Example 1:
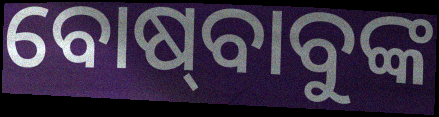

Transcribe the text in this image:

ବୋଷ୍‍ବାବୁଙ୍କ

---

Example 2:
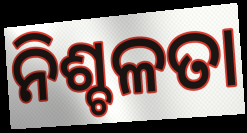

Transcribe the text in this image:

ନିଶ୍ଚଳତା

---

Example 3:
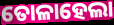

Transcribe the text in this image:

ତୋଳାହେଲା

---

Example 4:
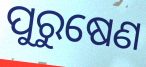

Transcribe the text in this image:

ପୁରୁଷେଣ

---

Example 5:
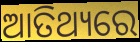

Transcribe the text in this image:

ଆତିଥ୍ୟରେ